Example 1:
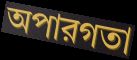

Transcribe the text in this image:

অপারগতা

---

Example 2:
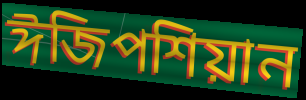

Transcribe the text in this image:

ঈজিপশিয়ান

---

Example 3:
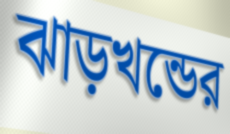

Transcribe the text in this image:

ঝাড়খন্ডের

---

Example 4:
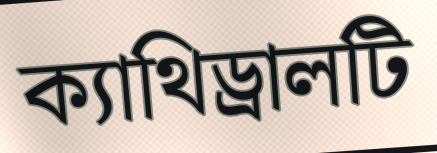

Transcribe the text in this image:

ক্যাথিড্রালটি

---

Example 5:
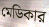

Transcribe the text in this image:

মেডিকার